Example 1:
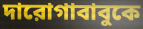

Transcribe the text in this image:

দারোগাবাবুকে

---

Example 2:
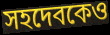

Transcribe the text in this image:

সহদেবকেও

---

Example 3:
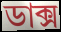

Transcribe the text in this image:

ডাক্স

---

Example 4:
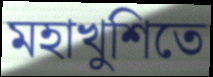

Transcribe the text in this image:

মহাখুশিতে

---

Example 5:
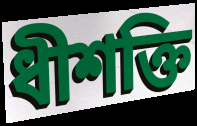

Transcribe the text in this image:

ধীশক্তি